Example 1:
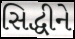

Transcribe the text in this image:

સિદ્ધીને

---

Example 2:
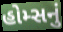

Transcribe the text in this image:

હોમ્સનું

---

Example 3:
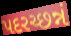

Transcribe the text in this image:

પદરચ્છન્નં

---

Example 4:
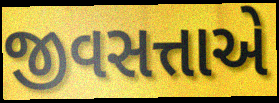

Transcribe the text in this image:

જીવસત્તાએ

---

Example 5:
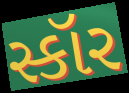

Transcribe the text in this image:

સ્કૉર